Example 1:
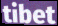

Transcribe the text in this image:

tibet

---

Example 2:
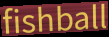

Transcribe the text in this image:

fishball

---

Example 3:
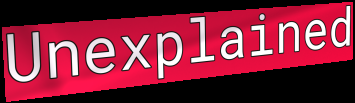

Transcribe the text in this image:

Unexplained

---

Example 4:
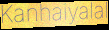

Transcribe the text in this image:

Kanhaiyalal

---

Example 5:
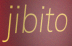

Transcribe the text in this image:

jibito